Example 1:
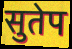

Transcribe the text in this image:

सुतेप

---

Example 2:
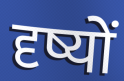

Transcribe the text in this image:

दृष्यों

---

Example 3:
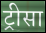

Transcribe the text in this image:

ट्रीसा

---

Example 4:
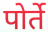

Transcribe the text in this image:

पोर्ते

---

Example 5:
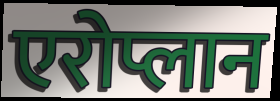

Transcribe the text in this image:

एरोप्लान